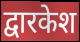
द्वारकेश